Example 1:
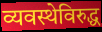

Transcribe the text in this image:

व्यवस्थेविरुद्ध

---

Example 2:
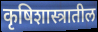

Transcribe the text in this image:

कृषिशास्त्रातील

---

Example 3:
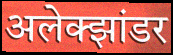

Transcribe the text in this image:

अलेक्झांडर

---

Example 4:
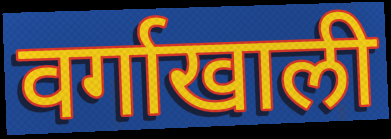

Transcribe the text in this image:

वर्गाखाली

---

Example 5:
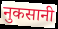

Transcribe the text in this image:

नुकसानी